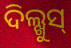
ଦିଲ୍ଖୁସ୍